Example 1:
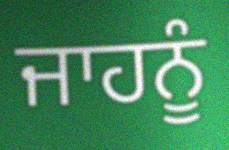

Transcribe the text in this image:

ਜਾਹਨੂੰ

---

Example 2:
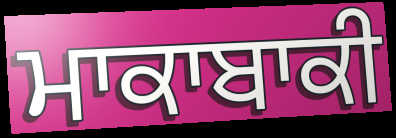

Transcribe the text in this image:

ਮਾਕਾਬਾਕੀ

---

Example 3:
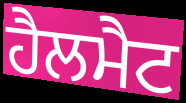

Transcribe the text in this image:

ਹੈਲਮੈਟ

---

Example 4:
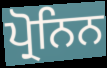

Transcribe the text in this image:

ਪ੍ਰੋਨਿਨ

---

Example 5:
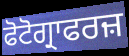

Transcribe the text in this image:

ਫੋਟੋਗ੍ਰਾਫਰਜ਼